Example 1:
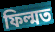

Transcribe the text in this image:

ফিল্মত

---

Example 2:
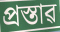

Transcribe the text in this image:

প্ৰস্তাৱ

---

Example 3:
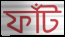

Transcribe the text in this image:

ফাঁট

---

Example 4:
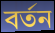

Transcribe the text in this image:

বৰ্তন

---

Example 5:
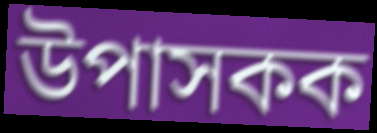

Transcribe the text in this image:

উপাসকক